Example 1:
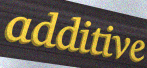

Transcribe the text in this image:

additive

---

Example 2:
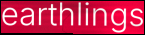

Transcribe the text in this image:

earthlings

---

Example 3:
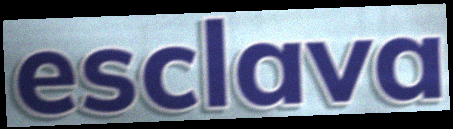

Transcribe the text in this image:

esclava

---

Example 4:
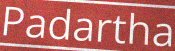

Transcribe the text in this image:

Padartha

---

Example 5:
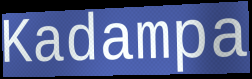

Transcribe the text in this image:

Kadampa